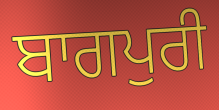
ਬਾਗਪੁਰੀ